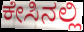
ಕೇಸಿನಲ್ಲಿ